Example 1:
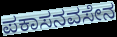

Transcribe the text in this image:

ಪಕಾಸನವಸೇನ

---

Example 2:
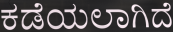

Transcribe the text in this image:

ಕಡೆಯಲಾಗಿದೆ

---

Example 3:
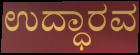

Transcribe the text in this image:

ಉದ್ಧಾರವ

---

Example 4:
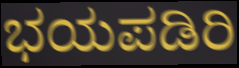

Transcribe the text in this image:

ಭಯಪಡಿರಿ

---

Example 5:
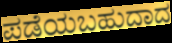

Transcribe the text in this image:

ಪಡೆಯಬಹುದಾದ